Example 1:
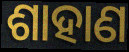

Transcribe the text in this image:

ଶାହାଣ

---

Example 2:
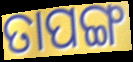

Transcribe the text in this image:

ତାପଙ୍ଗ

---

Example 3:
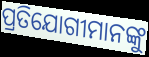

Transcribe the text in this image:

ପ୍ରତିଯୋଗୀମାନଙ୍କୁ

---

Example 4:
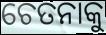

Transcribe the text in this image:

ଚେତନାକୁ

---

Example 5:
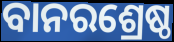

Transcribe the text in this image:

ବାନରଶ୍ରେଷ୍ଠ